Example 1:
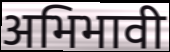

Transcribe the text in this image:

अभिभावी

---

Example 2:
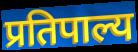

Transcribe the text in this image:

प्रतिपाल्य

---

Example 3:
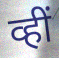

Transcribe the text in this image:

व्हीं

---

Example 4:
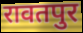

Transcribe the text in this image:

रावतपुर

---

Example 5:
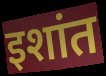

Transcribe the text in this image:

इशांत